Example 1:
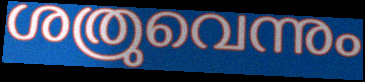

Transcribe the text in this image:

ശത്രുവെന്നും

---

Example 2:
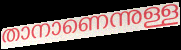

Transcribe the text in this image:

താനാണെന്നുള്ള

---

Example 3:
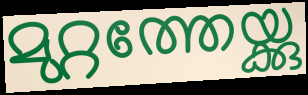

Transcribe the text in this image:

മുറ്റത്തേയ്ക്കു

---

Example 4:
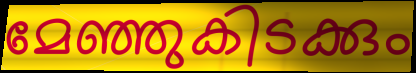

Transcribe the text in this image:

മേഞ്ഞുകിടക്കും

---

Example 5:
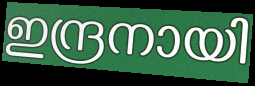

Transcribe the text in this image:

ഇന്ദ്രനായി